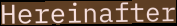
Hereinafter